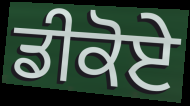
ਡੀਕੋਏ